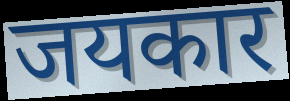
जयकार